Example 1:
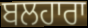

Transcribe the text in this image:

ਬਲਹਾਰਾ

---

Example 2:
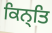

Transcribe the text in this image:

ਕਿਨ੍ਤਿ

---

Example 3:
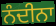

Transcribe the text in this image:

ਨੰਦੀਨਾ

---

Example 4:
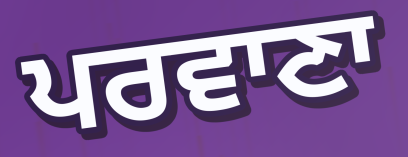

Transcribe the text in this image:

ਪਰਵਾਣਾ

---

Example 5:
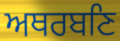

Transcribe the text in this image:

ਅਥਰਬਣਿ